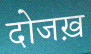
दोजख़